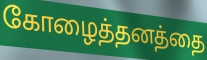
கோழைத்தனத்தை